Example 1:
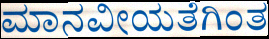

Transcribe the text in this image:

ಮಾನವೀಯತೆಗಿಂತ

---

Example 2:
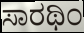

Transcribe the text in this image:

ಸಾರಥಿಂ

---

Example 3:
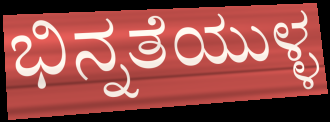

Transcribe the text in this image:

ಭಿನ್ನತೆಯುಳ್ಳ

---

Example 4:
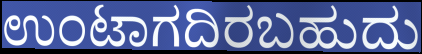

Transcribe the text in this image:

ಉಂಟಾಗದಿರಬಹುದು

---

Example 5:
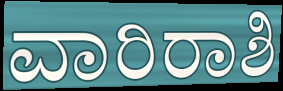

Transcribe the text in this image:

ವಾರಿರಾಶಿ